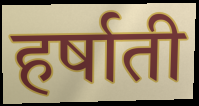
हर्षाती